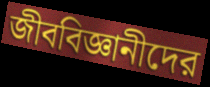
জীববিজ্ঞানীদের